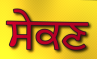
ਸੇਕਣ